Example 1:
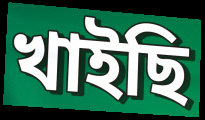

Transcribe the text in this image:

খাইছি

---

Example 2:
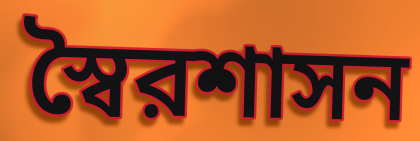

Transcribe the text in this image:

স্বৈরশাসন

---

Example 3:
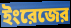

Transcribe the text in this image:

ইংরেজের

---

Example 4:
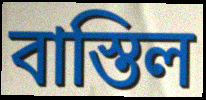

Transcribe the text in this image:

বাস্তিল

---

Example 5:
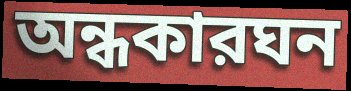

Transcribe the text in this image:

অন্ধকারঘন